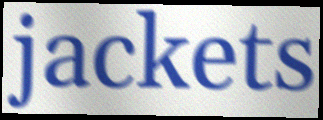
jackets